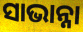
ସାଭାନ୍ନା